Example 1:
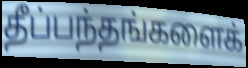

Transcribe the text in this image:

தீப்பந்தங்களைக்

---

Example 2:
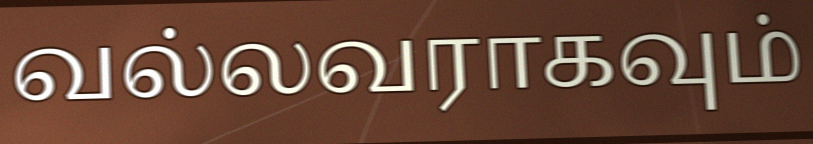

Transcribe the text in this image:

வல்லவராகவும்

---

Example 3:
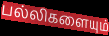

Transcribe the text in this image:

பல்லிகளையும்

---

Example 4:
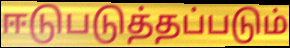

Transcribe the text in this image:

ஈடுபடுத்தப்படும்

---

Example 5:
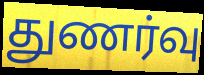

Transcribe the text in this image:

துணர்வு